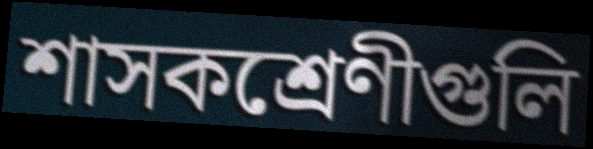
শাসকশ্রেণীগুলি